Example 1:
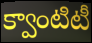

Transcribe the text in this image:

క్వాంటిటీ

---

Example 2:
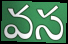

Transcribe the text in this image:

వస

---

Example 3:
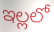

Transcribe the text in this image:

ఇల్లలో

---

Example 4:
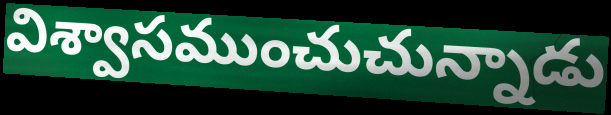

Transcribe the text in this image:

విశ్వాసముంచుచున్నాడు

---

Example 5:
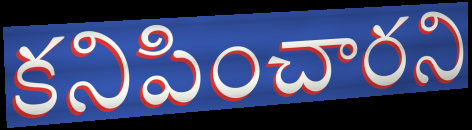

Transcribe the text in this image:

కనిపించారని